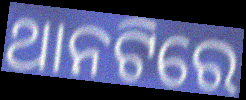
ଥାନଟିରେ